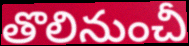
తొలినుంచీ